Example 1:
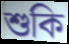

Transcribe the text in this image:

শুকি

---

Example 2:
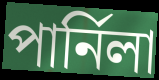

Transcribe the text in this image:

পার্নিলা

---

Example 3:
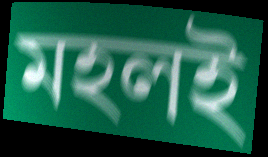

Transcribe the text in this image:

মহলই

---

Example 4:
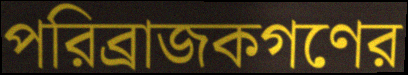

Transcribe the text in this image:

পরিব্রাজকগণের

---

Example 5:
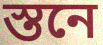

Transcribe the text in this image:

স্তনে